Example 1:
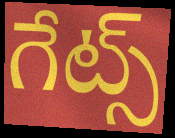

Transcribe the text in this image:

గేట్స్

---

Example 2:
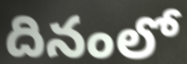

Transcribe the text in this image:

దినంలో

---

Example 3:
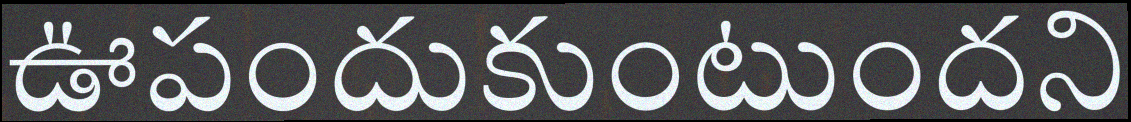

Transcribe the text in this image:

ఊపందుకుంటుందని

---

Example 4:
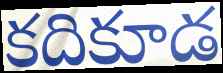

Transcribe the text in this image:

కదికూడ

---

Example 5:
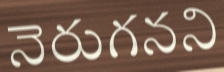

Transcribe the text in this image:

నెరుగనని